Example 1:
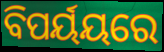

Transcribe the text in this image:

ବିପର୍ୟୟରେ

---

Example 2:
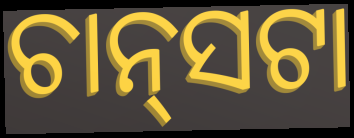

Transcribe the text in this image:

ଚାନ୍‌ସଟା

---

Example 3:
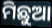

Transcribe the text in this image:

ମିଛୁଆ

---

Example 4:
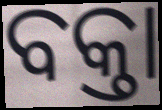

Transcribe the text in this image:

ବକ୍ତା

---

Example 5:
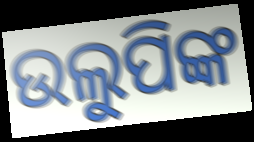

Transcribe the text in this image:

ଉଲୁପିଙ୍କ